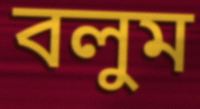
বলুম